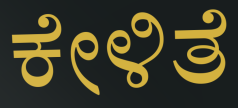
ಕೇಳಿತೆ